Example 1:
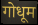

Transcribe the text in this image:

गोधूम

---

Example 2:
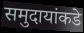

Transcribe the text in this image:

समुदायांकडे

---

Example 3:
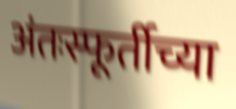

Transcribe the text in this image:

अंतःस्फूर्तीच्या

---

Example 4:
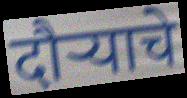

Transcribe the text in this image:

दौर्‍याचे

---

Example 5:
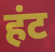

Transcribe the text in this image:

हंट